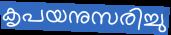
കൃപയനുസരിച്ചു